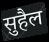
सुहैल